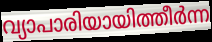
വ്യാപാരിയായിത്തീർന്ന